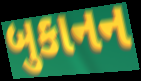
બુકાનન